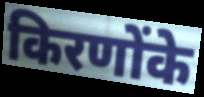
किरणोंके